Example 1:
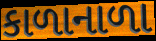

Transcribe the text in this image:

કાળાનાળા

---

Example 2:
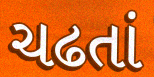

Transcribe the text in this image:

ચઢતાં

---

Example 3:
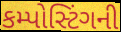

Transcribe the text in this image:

કમ્પોસ્ટિંગની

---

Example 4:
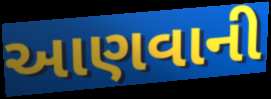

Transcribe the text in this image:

આણવાની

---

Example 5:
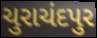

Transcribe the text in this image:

ચુરાચંદપુર